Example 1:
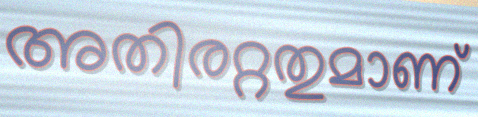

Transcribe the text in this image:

അതിരറ്റതുമാണ്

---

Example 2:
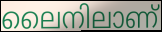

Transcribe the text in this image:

ലൈനിലാണ്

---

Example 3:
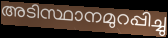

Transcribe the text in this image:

അടിസ്ഥാനമുറപ്പിച്ചു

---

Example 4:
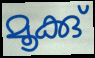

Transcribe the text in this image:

മൂക്കു്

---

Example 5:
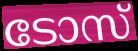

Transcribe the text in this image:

ടോസ്